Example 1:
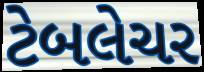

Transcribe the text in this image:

ટેબલેચર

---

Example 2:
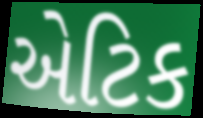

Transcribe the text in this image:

એટિક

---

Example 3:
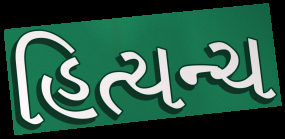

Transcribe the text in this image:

હિત્યન્ચ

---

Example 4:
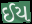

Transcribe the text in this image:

ઈય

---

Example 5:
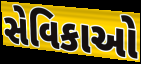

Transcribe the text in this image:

સેવિકાઓ